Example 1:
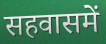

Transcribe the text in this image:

सहवासमें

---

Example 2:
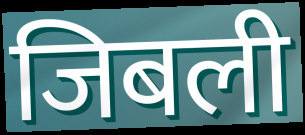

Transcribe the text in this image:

जिबली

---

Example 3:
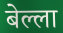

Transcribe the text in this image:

बेल्ला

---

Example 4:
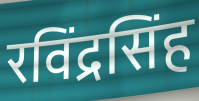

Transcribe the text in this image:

रविंद्रसिंह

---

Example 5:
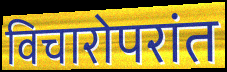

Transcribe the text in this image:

विचारोपरांत